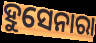
ହୁସେନାରା